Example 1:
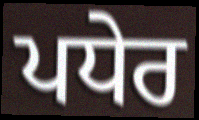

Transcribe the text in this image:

ਪਧੇਰ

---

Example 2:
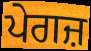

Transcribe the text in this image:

ਪੇਗਜ਼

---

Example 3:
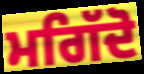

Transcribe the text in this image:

ਮਗਿੱਦੋ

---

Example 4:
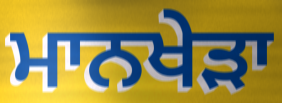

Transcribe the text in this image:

ਮਾਨਖੇੜਾ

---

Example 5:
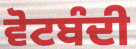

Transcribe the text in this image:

ਵੋਟਬੰਦੀ